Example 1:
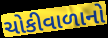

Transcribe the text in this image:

ચોકીવાળાનો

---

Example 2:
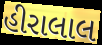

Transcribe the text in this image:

હીરાલાલ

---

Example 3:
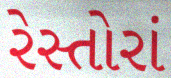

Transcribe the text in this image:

રેસ્તોરાં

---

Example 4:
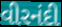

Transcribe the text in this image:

વીરનંદી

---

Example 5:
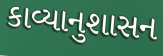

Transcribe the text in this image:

કાવ્યાનુશાસન